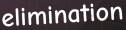
elimination